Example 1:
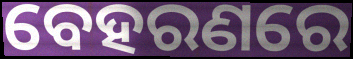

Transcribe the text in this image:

ବେହରଣରେ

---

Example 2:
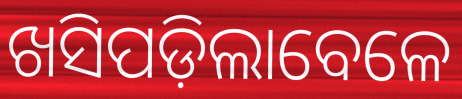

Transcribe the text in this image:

ଖସିପଡ଼ିଲାବେଳେ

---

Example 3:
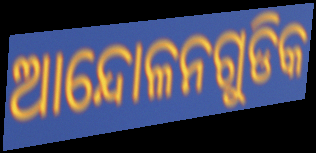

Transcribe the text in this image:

ଆନ୍ଦୋଳନଗୁଡିକ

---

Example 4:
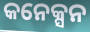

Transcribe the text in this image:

କନେକ୍ସନ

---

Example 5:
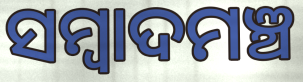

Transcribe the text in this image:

ସମ୍ୱାଦମଞ୍ଚ